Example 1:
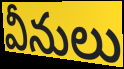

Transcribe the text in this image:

వీనులు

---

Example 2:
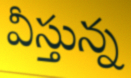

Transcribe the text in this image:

వీస్తున్న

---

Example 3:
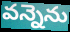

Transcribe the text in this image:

వన్నెను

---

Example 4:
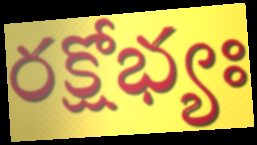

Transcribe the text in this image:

రక్షోభ్యః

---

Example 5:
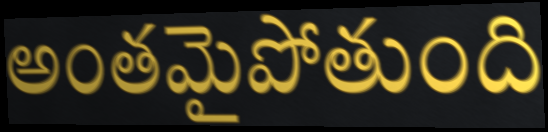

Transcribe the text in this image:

అంతమైపోతుంది